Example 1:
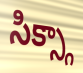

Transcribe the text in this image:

సిక్స్గా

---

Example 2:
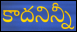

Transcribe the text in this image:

కాదనిన్నీ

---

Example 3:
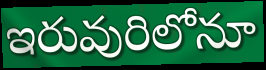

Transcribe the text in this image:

ఇరువురిలోనూ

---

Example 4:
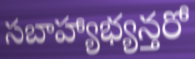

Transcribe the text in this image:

సబాహ్యాభ్యన్తరో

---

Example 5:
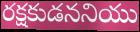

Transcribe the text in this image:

రక్షకుడననియు